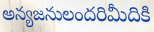
అన్యజనులందరిమీదికి